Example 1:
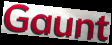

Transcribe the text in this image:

Gaunt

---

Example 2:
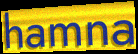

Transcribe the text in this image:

hamna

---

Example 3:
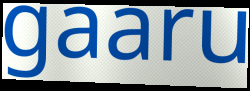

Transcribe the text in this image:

gaaru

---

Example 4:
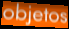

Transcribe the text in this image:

objetos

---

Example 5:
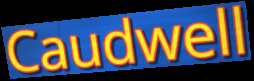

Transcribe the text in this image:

Caudwell